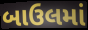
બાઉલમાં